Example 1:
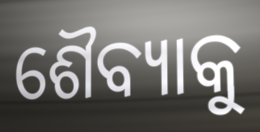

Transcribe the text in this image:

ଶୈବ୍ୟାକୁ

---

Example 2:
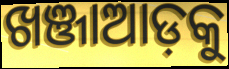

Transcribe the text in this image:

ଖଞ୍ଜାଆଡ଼କୁ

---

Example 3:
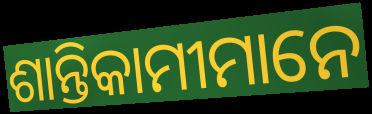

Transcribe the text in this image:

ଶାନ୍ତିକାମୀମାନେ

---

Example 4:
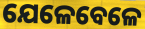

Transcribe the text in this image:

ଯେଳେବେଳେ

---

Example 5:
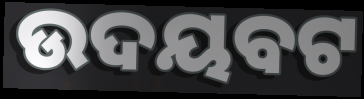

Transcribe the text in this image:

ଉଦୟବଟ